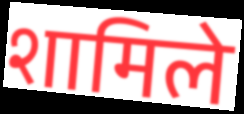
शामिले